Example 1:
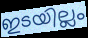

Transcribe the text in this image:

ഇടയില്ലം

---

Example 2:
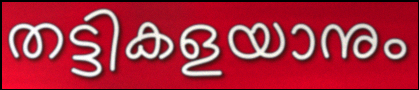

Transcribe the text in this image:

തട്ടികളയാനും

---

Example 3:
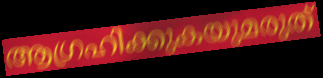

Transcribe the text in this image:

ആഗ്രഹിക്കുകയുമരുത്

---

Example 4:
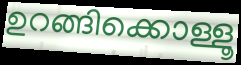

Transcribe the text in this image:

ഉറങ്ങിക്കൊള്ളൂ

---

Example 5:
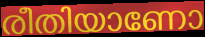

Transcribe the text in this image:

രീതിയാണോ